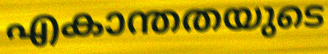
എകാന്തതയുടെ